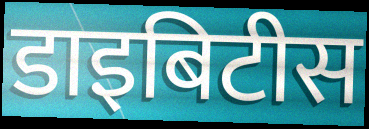
डाइबिटीस